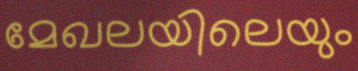
മേഖലയിലെയും